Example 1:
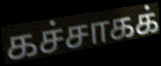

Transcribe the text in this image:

கச்சாகக்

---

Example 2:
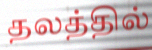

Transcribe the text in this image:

தலத்தில்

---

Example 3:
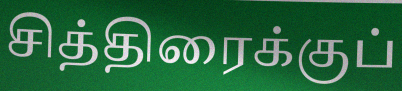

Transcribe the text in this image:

சித்திரைக்குப்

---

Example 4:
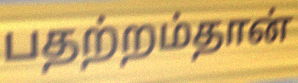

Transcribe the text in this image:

பதற்றம்தான்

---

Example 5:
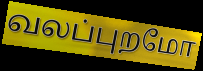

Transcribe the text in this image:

வலப்புறமோ